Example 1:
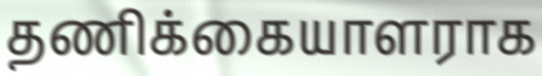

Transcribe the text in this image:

தணிக்கையாளராக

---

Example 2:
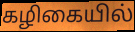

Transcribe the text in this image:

கழிகையில்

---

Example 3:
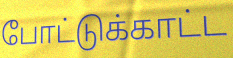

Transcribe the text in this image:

போட்டுக்காட்ட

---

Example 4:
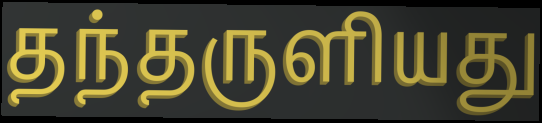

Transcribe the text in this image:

தந்தருளியது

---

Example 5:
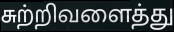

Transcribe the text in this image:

சுற்றிவளைத்து